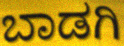
ಬಾಡಗಿ